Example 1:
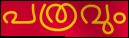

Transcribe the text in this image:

പത്രവും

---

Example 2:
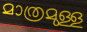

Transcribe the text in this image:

മാത്രമുള്ള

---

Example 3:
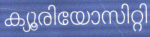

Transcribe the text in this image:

ക്യൂരിയോസിറ്റി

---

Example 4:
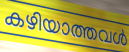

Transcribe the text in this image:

കഴിയാത്തവൾ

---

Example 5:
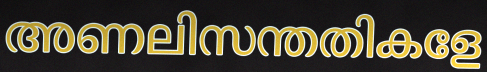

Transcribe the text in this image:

അണലിസന്തതികളേ